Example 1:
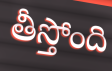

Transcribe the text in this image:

తీస్తోంది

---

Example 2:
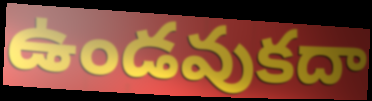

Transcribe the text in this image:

ఉండవుకదా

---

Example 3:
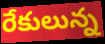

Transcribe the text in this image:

రేకులున్న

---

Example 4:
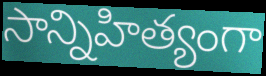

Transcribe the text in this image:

సాన్నిహిత్యంగా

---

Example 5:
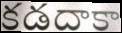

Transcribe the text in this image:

కడదాకా